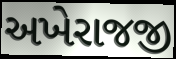
અખેરાજજી